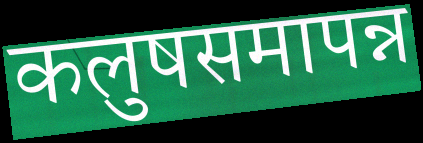
कलुषसमापन्न